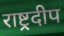
राष्ट्रदीप